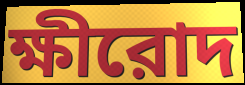
ক্ষীরোদ